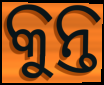
କୁନ୍ତ